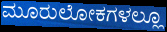
ಮೂರುಲೋಕಗಳಲ್ಲೂ